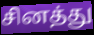
சினத்து